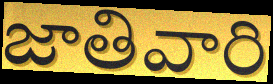
జాతివారి